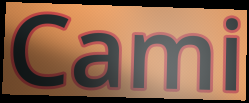
Cami